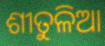
ଶୀତୁଳିଆ